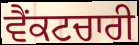
ਵੈਂਕਟਚਾਰੀ